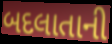
બદલાતાની